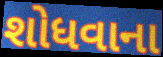
શોધવાના